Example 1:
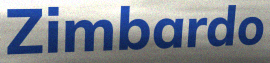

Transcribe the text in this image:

Zimbardo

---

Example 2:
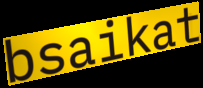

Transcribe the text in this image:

bsaikat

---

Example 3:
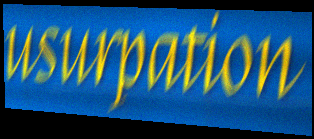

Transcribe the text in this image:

usurpation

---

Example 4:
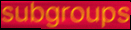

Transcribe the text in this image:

subgroups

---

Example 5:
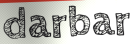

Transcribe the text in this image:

darbar